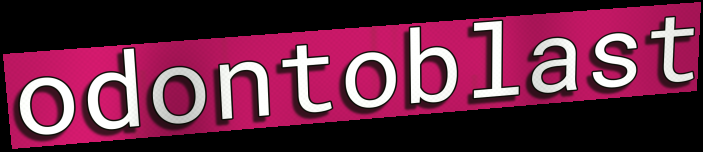
odontoblast